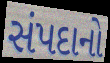
સંપદાનો